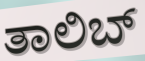
ತಾಲಿಬ್